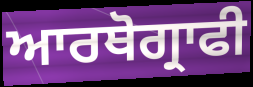
ਆਰਥੋਗ੍ਰਾਫੀ